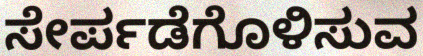
ಸೇರ್ಪಡೆಗೊಳಿಸುವ